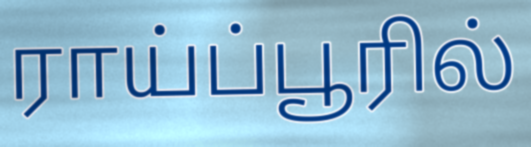
ராய்ப்பூரில்